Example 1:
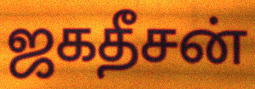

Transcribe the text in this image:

ஜகதீசன்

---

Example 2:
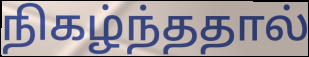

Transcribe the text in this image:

நிகழ்ந்ததால்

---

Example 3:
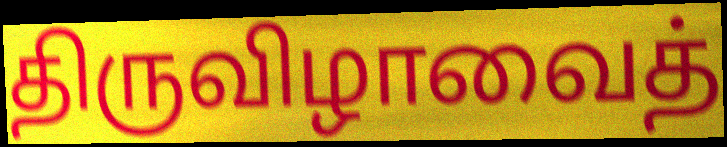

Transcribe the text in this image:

திருவிழாவைத்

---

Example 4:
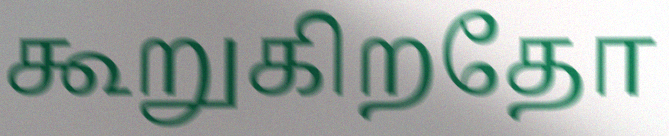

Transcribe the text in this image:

கூறுகிறதோ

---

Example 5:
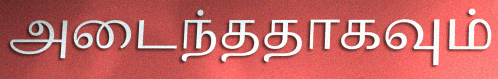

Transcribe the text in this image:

அடைந்ததாகவும்